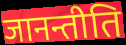
जानन्तीति